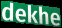
dekhe